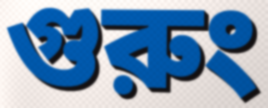
গুরুং